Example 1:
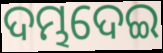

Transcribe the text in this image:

ଦମ୍ଭଦେଇ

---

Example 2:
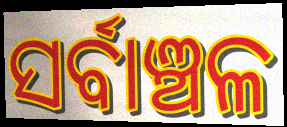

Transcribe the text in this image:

ସର୍ବାଞ୍ଚଳ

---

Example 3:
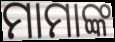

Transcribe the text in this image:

ମାମାଙ୍କ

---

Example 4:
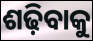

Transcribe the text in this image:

ଶଢ଼ିବାକୁ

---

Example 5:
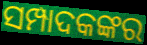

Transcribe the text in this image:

ସମ୍ପାଦକଙ୍କର